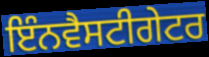
ਇੰਨਵੈਸਟੀਗੇਟਰ